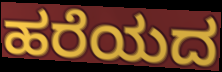
ಹರೆಯದ